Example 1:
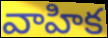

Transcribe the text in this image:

వాహిక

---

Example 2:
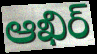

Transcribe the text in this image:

ఆఖిర్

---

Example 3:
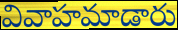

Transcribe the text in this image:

వివాహమాడారు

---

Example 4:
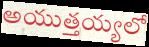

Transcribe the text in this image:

అయుత్తయ్యలో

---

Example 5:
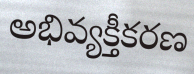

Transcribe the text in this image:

అభివ్యక్తీకరణ